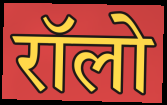
रॉलो